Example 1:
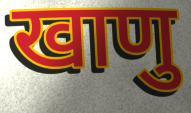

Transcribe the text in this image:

खाणु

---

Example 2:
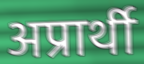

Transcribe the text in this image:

अप्रार्थी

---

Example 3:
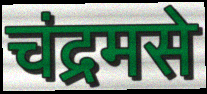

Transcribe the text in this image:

चंद्रमसे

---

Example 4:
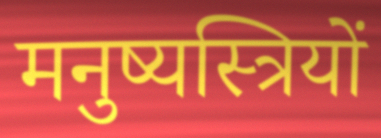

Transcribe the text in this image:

मनुष्यस्त्रियों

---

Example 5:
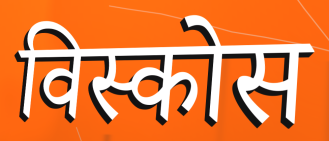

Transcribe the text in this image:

विस्कोस